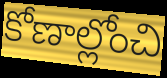
కోణాల్లోంచి